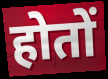
होतों